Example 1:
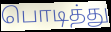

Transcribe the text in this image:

பொடித்து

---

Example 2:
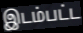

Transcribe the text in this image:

இடம்பட்ட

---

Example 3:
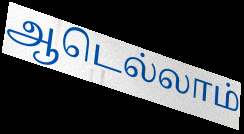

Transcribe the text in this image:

ஆடெல்லாம்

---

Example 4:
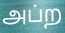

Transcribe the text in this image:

அப்ற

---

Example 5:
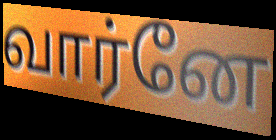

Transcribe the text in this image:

வார்னே